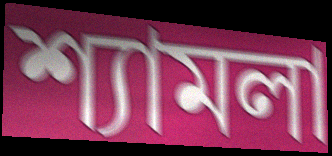
শ্যামলা